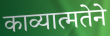
काव्यात्मतेने